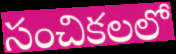
సంచికలలో